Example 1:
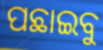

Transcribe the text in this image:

ପଛାଇବୁ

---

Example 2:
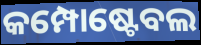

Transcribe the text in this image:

କମ୍ପୋଷ୍ଟେବଲ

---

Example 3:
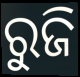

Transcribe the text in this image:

ରୁଜି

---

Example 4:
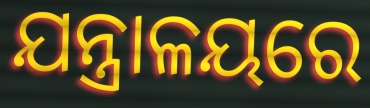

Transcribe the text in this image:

ଯନ୍ତ୍ରାଳୟରେ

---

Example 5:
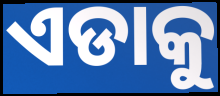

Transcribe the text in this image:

ଏଡାକୁ